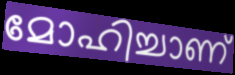
മോഹിച്ചാണ്